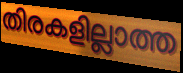
തിരകളില്ലാത്ത